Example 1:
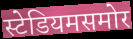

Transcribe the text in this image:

स्टेडियमसमोर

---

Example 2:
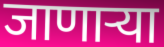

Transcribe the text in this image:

जाणाऱ्या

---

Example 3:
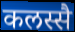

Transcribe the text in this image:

कलस्सै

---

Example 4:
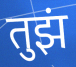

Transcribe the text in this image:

तुझं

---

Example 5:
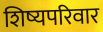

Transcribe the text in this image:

शिष्यपरिवार